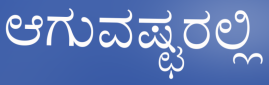
ಆಗುವಷ್ಟರಲ್ಲಿ